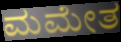
ಮಮೇತ